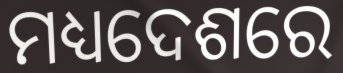
ମଧ୍ୟଦେଶରେ